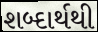
શબ્દાર્થથી